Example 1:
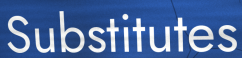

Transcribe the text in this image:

Substitutes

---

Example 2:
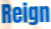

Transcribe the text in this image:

Reign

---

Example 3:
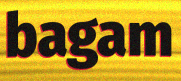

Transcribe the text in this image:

bagam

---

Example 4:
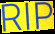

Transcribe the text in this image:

RIP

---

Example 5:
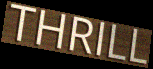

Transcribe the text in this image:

THRILL